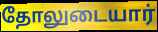
தோலுடையார்